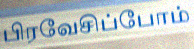
பிரவேசிப்போம்